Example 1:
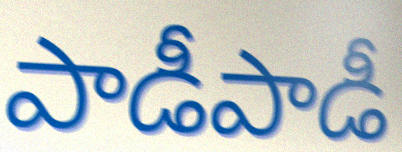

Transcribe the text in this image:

పాడీపాడీ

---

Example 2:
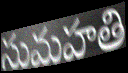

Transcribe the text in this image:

సుమహతి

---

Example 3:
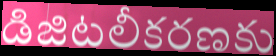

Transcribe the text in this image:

డిజిటలీకరణకు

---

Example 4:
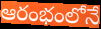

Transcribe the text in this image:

ఆరంభంలోనే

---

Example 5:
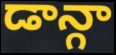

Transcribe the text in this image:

డాన్గా